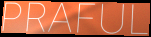
PRAFUL